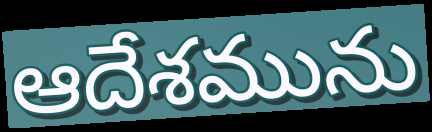
ఆదేశమును